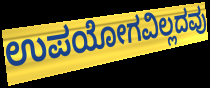
ಉಪಯೋಗವಿಲ್ಲದವು